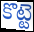
కొట్టె